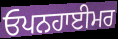
ਓਪਨਹਾਈਮਰ